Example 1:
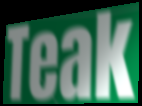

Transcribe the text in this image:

Teak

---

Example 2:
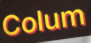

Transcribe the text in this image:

Colum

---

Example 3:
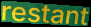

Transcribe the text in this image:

restant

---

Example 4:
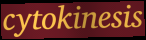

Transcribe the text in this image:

cytokinesis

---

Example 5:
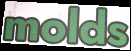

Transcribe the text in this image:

molds